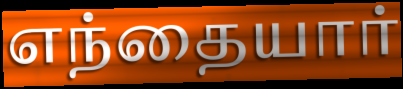
எந்தையார்